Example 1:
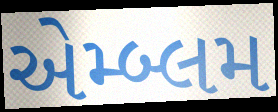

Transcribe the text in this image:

એમ્બ્લમ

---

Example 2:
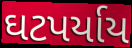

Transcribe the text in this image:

ઘટપર્યાય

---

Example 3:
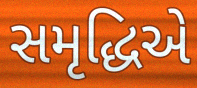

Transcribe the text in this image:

સમૃદ્ધિએ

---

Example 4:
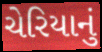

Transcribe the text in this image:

ચેરિયાનું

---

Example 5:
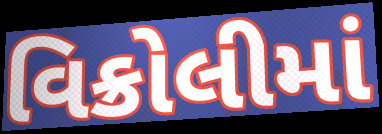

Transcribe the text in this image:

વિક્રોલીમાં